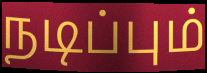
நடிப்பும்